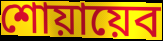
শোয়ায়েব